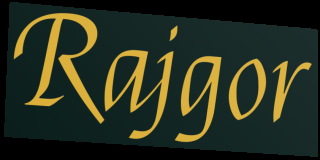
Rajgor